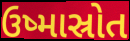
ઉષ્માસ્રોત